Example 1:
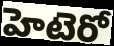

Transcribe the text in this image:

హెటెరో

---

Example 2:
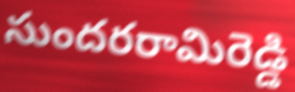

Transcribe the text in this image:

సుందరరామిరెడ్డి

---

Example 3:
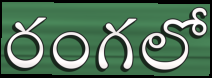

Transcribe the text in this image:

రంగలో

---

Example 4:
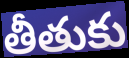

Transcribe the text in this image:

తీతుకు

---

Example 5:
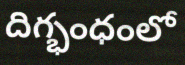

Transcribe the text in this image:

దిగ్భంధంలో